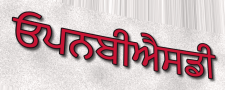
ਓਪਨਬੀਐਸਡੀ